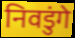
निवडुंगे